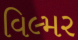
વિલ્મર